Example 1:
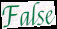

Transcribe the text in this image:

False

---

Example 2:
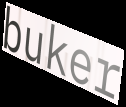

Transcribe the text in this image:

buker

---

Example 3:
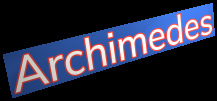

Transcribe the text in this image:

Archimedes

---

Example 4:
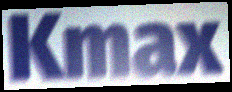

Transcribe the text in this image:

Kmax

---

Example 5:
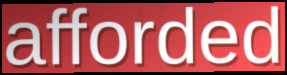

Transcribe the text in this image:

afforded